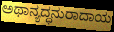
ಅಥಾನ್ಯದ್ಧನುರಾದಾಯ